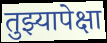
तुझ्यापेक्षा